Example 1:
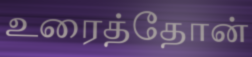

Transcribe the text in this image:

உரைத்தோன்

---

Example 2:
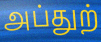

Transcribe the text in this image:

அப்துற்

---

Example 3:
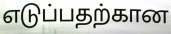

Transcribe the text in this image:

எடுப்பதற்கான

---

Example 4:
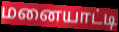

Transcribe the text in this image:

மனையாட்டி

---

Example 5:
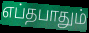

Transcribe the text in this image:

எப்தபாதும்